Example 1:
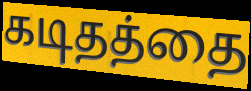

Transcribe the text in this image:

கடிதத்தை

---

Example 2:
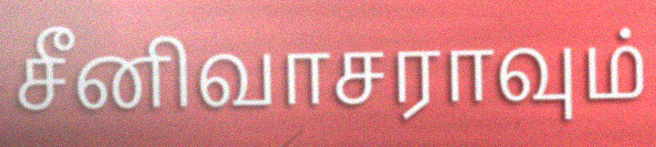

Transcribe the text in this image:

சீனிவாசராவும்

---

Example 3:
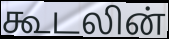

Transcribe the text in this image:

கூடலின்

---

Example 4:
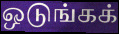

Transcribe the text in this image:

ஒடுங்கக்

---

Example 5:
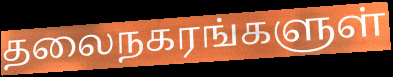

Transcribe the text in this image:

தலைநகரங்களுள்